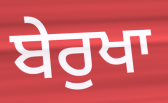
ਬੇਰੁਖਾ